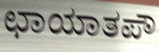
ಛಾಯಾತಪೌ